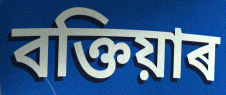
বক্তিয়াৰ